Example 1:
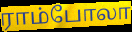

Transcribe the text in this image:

ராம்போலா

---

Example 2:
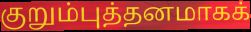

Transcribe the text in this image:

குறும்புத்தனமாகக்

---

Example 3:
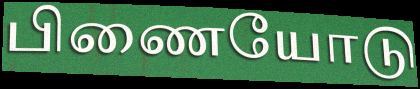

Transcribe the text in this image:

பிணையோடு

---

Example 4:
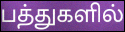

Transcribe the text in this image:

பத்துகளில்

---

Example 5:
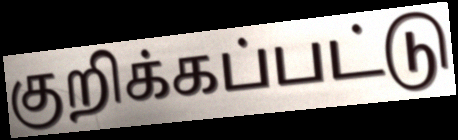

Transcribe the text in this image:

குறிக்கப்பட்டு